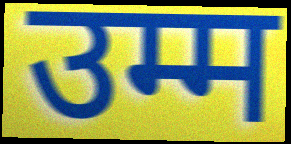
उम्म